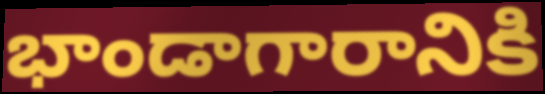
భాండాగారానికి